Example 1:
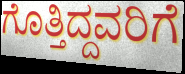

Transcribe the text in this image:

ಗೊತ್ತಿದ್ದವರಿಗೆ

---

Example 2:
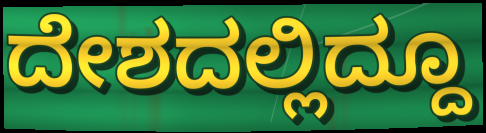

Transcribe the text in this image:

ದೇಶದಲ್ಲಿದ್ದೂ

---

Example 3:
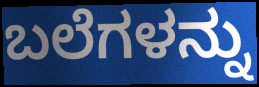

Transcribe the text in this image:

ಬಲೆಗಳನ್ನು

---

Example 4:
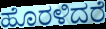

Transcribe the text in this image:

ಹೊರಳಿದರೆ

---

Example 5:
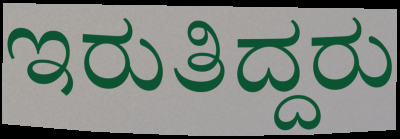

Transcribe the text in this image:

ಇರುತಿದ್ದರು